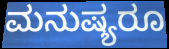
ಮನುಷ್ಯರೂ